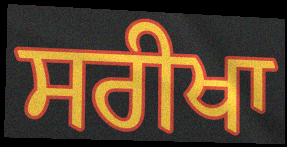
ਸਰੀਖਾ